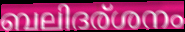
ബലിദര്ശനം